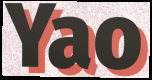
Yao